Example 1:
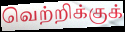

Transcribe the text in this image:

வெற்றிக்குக்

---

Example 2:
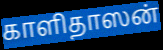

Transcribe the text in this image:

காளிதாஸன்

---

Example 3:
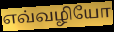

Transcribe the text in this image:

எவ்வழியோ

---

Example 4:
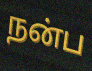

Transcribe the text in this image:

நன்ப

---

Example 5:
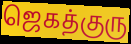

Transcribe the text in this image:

ஜெகத்குரு